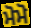
ਮੋਮੋ